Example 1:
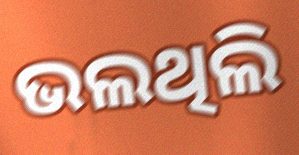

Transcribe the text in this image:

ଭଲଥିଲି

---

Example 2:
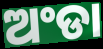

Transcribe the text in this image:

ଅଂଡା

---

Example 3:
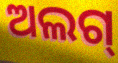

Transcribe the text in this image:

ଅଲଗ୍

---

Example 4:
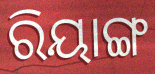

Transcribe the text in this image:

ରିୟାଙ୍ଗ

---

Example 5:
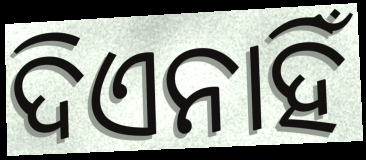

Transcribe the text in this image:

ଦିଏନାହିଁ